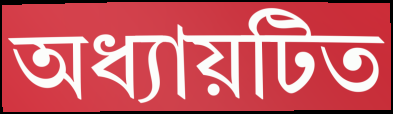
অধ্যায়টিত